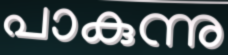
പാകുന്നു